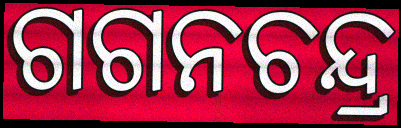
ଗଗନଚନ୍ଦ୍ର